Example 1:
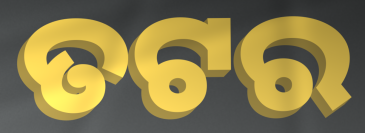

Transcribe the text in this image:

ତଟର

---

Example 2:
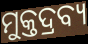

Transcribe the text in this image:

ମୁକ୍ତଦ୍ରବ୍ୟ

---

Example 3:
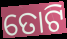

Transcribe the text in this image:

ତୋଟି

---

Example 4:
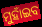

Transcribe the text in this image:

ମୁହାଁଇବ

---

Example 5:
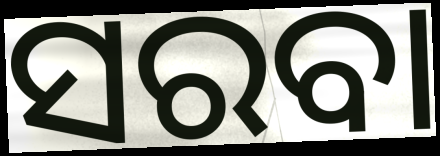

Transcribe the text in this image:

ସରବା